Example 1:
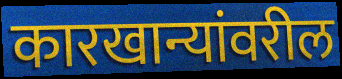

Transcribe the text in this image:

कारखान्यांवरील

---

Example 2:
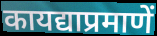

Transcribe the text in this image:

कायद्याप्रमाणें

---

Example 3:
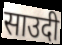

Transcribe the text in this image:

साउदी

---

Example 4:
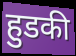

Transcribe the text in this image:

हुडकी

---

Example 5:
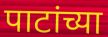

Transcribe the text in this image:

पाटांच्या